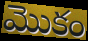
మొకం